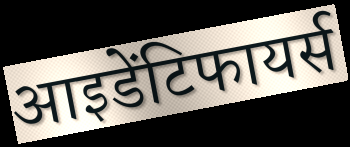
आइडेंटिफायर्स